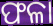
ଫଳା